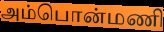
அம்பொன்மணி